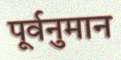
पूर्वनुमान